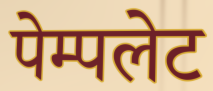
पेम्पलेट